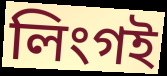
লিংগই